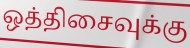
ஒத்திசைவுக்கு